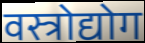
वस्त्रोद्योग